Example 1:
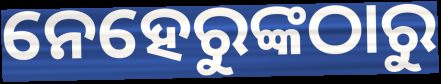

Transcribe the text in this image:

ନେହେରୁଙ୍କଠାରୁ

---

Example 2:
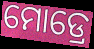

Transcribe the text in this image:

ମୋଡ୍ରେ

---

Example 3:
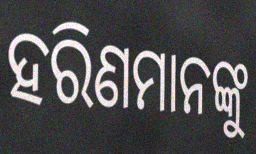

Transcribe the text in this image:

ହରିଣମାନଙ୍କୁ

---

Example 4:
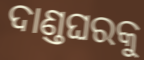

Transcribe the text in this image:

ଦାଣ୍ଡଘରକୁ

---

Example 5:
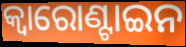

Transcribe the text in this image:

କ୍ୱାରୋଣ୍ଟାଇନ